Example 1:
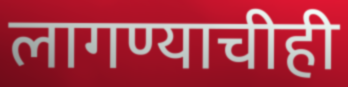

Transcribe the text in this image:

लागण्याचीही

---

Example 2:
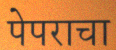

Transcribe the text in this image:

पेपराचा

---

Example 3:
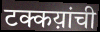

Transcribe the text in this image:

टक्कय़ांची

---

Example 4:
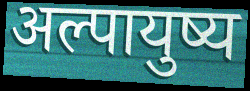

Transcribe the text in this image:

अल्पायुष्य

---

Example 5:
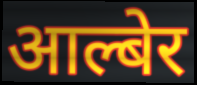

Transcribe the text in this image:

आल्बेर